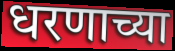
धरणाच्या